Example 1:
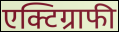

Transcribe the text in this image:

एक्टिग्राफी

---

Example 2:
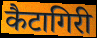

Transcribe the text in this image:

कैटागिरी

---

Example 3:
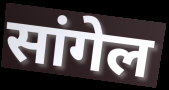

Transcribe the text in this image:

सांगेल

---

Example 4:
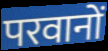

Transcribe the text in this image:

परवानों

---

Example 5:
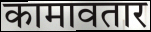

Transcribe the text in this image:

कामावतार